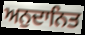
ਅਨੁਦਾਨਿਤ